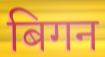
बिगन